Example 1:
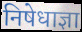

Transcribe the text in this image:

निषेधाज्ञा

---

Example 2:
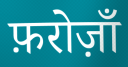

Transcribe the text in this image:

फ़रोज़ाँ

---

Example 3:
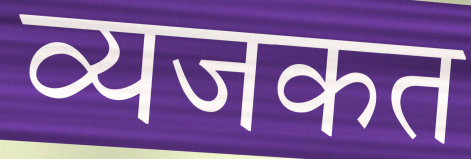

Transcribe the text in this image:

व्यजकत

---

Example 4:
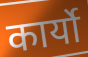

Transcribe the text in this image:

कार्यो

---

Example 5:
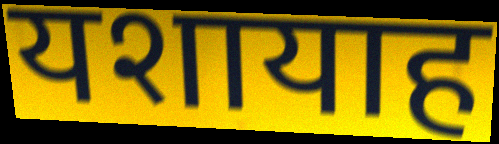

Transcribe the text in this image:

यशायाह